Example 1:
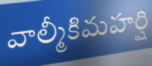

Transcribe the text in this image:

వాల్మీకిమహర్షి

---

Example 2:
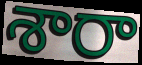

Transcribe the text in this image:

శారా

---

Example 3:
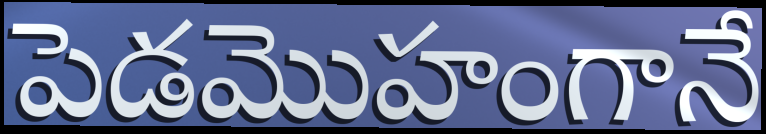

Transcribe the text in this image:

పెడమొహంగానే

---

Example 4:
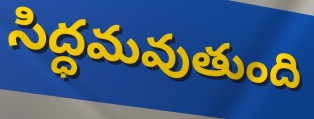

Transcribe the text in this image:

సిద్ధమవుతుంది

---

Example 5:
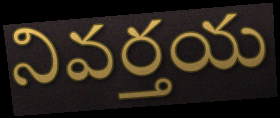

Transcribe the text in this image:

నివర్తయ